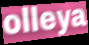
olleya